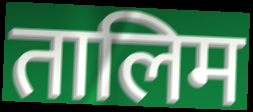
तालिम